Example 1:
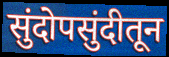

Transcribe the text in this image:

सुंदोपसुंदीतून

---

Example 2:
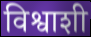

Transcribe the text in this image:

विश्वाशी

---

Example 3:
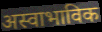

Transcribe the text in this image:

अस्वाभाविक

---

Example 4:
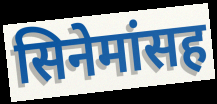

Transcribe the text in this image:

सिनेमांसह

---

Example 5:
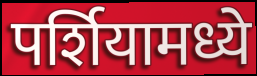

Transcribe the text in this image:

पर्शियामध्ये